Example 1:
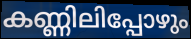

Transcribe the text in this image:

കണ്ണിലിപ്പോഴും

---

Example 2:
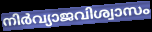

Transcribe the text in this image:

നിർവ്യാജവിശ്വാസം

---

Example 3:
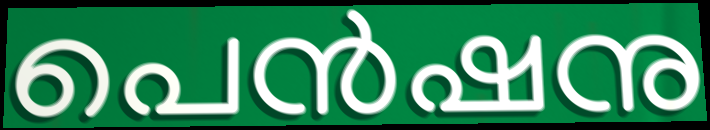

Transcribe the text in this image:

പെൻഷനു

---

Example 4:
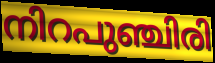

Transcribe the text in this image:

നിറപുഞ്ചിരി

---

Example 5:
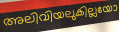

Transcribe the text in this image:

അലിവിയലുകില്ലയോ